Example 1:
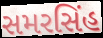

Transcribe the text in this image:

સમરસિંહ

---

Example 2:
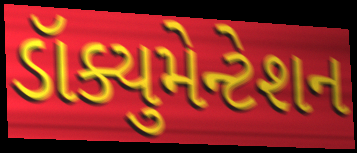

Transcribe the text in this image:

ડૉક્યુમેન્ટેશન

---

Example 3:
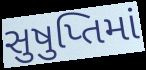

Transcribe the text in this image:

સુષુપ્તિમાં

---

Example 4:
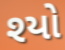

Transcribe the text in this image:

શ્યો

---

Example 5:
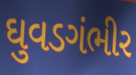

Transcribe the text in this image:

ઘુવડગંભીર